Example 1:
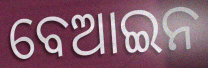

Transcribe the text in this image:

ବେଆଇନ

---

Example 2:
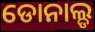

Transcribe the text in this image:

ଡୋନାଲ୍ଡ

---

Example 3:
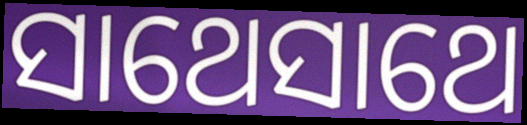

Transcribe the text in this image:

ସାଥେସାଥେ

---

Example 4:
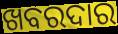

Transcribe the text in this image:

ଖବରଦାର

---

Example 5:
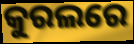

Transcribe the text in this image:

କୁରଲରେ